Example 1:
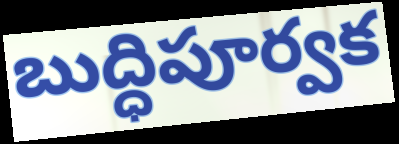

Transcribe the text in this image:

బుద్ధిపూర్వక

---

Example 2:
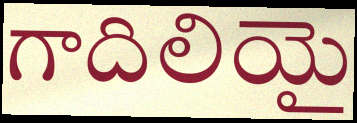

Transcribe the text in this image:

గాదిలియై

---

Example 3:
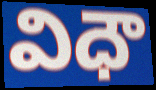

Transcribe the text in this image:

విధౌ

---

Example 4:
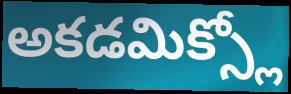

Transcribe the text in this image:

అకడమిక్స్లో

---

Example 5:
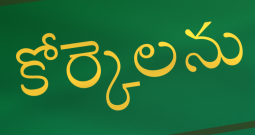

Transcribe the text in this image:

కోర్కెలను